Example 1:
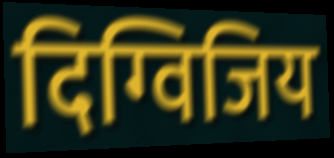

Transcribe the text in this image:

दिग्विजिय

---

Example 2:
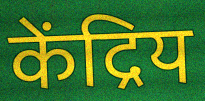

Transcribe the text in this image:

केंद्रिय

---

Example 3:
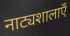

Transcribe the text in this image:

नाट्यशालाएँ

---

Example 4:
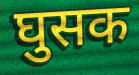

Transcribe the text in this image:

घुसक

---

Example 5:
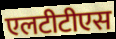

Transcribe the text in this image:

एलटीटीएस